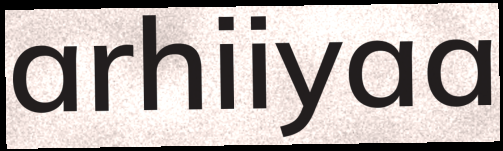
arhiiyaa